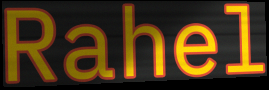
Rahel